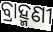
ବ୍ରାହ୍ମଣୀ